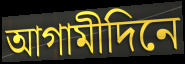
আগামীদিনে